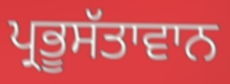
ਪ੍ਰਭੂਸੱਤਾਵਾਨ